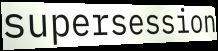
supersession